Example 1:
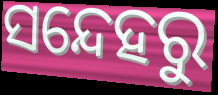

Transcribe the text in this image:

ସନ୍ଦେହରୁ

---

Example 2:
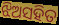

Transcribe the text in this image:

ଝିଅସହିତ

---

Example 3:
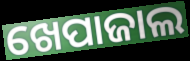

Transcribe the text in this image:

ଖେପାଜାଲ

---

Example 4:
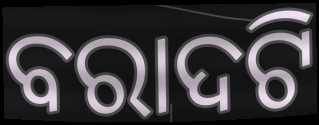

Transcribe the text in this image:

ବରାଦଟି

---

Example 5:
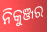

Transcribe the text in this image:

ନିକୁଞ୍ଜର